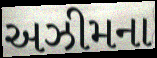
અઝીમના